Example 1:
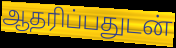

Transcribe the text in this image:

ஆதரிப்பதுடன்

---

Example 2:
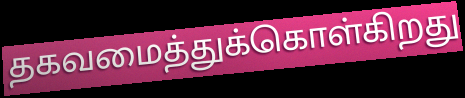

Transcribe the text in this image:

தகவமைத்துக்கொள்கிறது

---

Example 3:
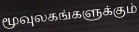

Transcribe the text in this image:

மூவுலகங்களுக்கும்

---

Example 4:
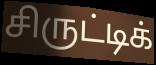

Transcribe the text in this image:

சிருட்டிக்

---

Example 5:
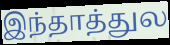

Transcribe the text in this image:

இந்தாத்துல